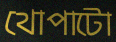
থোপাটো